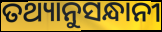
ତଥ୍ୟାନୁସନ୍ଧାନୀ